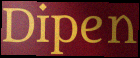
Dipen